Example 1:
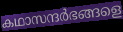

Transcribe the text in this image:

കഥാസന്ദർഭങ്ങളെ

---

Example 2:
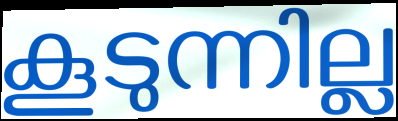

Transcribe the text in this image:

കൂടുന്നില്ല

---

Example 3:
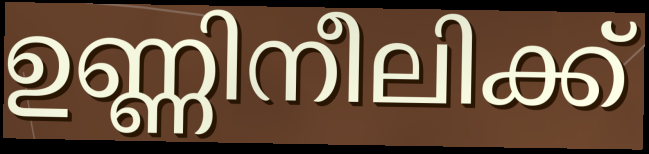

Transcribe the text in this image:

ഉണ്ണിനീലിക്ക്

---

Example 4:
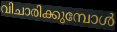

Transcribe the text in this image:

വിചാരിക്കുമ്പോൾ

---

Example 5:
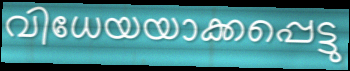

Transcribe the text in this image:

വിധേയയാക്കപ്പെട്ടു